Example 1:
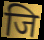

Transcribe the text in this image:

जि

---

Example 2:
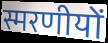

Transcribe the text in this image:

स्मरणीयों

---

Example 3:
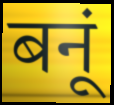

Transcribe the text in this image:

बनूं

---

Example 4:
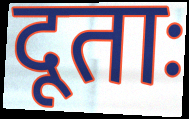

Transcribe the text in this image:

दूताः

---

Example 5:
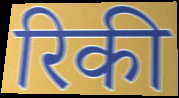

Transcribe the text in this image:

रिकी